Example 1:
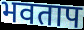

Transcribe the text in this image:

भवताप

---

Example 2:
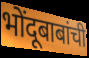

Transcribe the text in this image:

भोंदूबाबांची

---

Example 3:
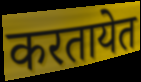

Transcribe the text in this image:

करतायेत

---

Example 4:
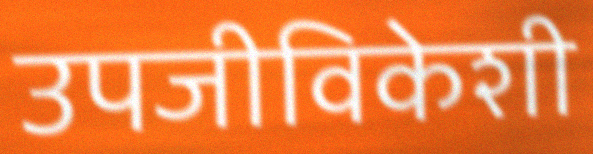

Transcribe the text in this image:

उपजीविकेशी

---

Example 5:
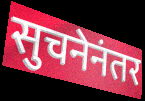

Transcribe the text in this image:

सुचनेनंतर